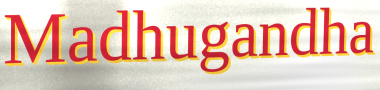
Madhugandha